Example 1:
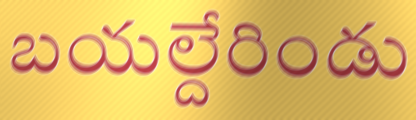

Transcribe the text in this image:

బయల్దేరిండు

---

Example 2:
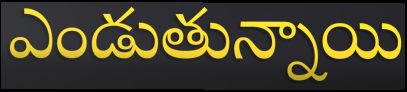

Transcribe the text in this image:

ఎండుతున్నాయి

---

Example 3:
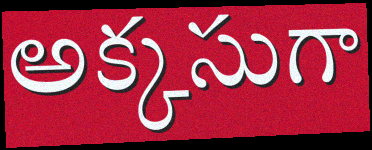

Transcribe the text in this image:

అక్కసుగా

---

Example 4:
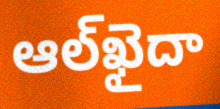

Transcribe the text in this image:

ఆల్‌ఖైదా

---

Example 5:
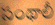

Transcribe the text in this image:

సంథాలీ